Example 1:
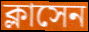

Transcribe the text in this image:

ক্লাসেন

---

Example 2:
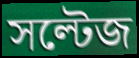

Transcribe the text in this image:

সল্টেজ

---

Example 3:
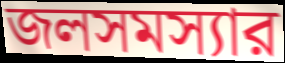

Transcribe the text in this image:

জলসমস্যার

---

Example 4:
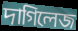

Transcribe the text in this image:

দাগিলেজ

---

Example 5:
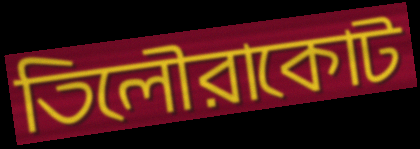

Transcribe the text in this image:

তিলৌরাকোট